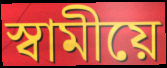
স্বামীয়ে